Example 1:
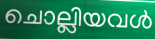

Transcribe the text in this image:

ചൊല്ലിയവൾ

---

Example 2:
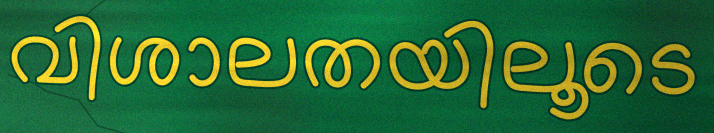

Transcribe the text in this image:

വിശാലതയിലൂടെ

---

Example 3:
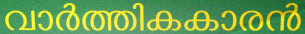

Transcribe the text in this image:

വാർത്തികകാരൻ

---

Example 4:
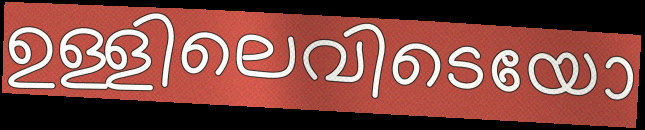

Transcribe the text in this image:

ഉള്ളിലെവിടെയോ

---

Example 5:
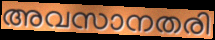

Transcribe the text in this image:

അവസാനതരി